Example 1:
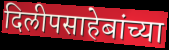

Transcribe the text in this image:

दिलीपसाहेबांच्या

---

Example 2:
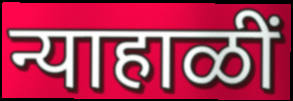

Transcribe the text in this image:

न्याहाळीं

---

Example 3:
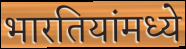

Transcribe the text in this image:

भारतियांमध्ये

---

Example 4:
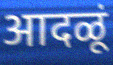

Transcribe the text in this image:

आदळूं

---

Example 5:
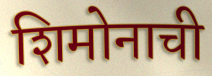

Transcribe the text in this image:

शिमोनाची